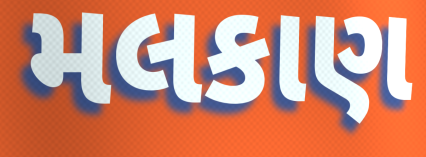
મલકાણ